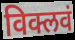
विक्लवं